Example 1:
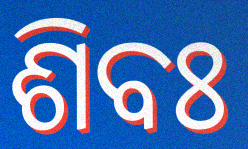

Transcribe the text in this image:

ଶିବଃ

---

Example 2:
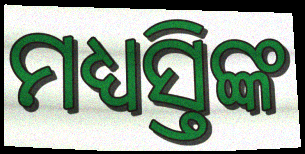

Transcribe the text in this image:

ମଧ୍ୟସ୍ତିଙ୍କ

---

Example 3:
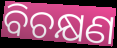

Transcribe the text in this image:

ବିଚକ୍ଷଣ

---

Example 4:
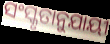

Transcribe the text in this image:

ସଂସ୍କୃତାନୁଯାୟୀ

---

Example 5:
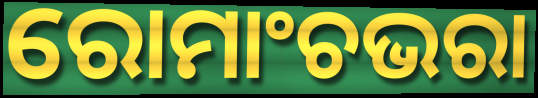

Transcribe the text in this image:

ରୋମାଂଚଭରା